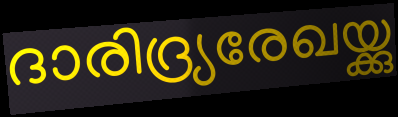
ദാരിദ്ര്യരേഖയ്ക്കു